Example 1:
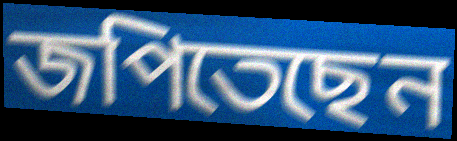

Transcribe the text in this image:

জপিতেছেন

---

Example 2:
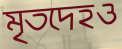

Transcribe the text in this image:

মৃতদেহও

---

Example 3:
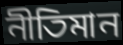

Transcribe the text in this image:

নীতিমান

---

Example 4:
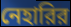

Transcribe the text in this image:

নেহারির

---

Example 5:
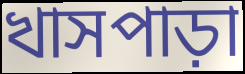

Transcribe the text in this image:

খাসপাড়া